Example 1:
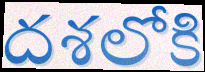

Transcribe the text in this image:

దశలోకి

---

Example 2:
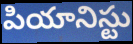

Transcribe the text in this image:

పియానిస్టు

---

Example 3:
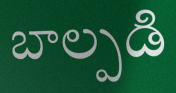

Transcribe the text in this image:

బాల్పడి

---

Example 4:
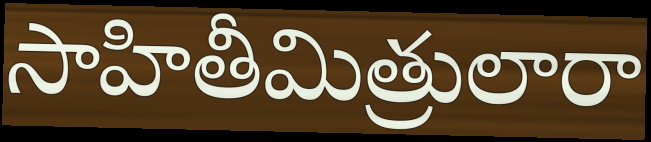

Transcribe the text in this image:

సాహితీమిత్రులారా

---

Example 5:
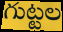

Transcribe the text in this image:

గుట్టల